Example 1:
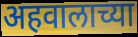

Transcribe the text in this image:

अहवालाच्या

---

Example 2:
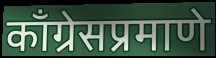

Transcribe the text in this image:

काँग्रेसप्रमाणे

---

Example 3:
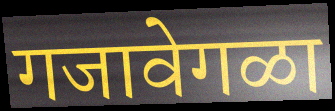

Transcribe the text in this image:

गजावेगळा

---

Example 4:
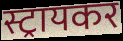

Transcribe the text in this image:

स्ट्रायकर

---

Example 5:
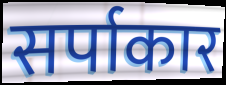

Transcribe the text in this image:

सर्पाकार